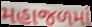
મહાજળમાં